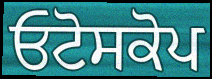
ਓਟੋਸਕੋਪ